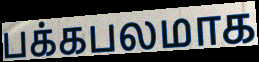
பக்கபலமாக